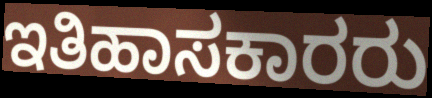
ಇತಿಹಾಸಕಾರರು